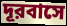
দূরবাসে